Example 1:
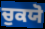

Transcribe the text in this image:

ਚੁਕਯੋ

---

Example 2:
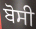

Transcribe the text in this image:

ਬੋਸੀ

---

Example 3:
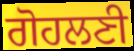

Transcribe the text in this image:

ਗੋਹਲਣੀ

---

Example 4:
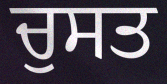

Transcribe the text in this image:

ਚੁਸਤ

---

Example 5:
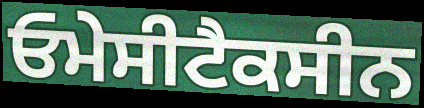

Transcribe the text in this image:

ਓਮੇਸੀਟੈਕਸੀਨ